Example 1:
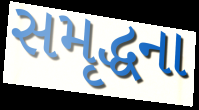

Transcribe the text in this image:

સમૃદ્ધના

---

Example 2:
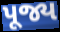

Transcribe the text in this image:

પૂજ્ય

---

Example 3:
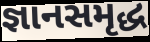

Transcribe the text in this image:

જ્ઞાનસમૃદ્ધ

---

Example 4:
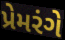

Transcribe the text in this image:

પ્રેમરંગે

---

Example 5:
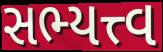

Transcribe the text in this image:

સભ્યત્ત્વ